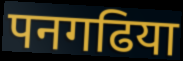
पनगढिया